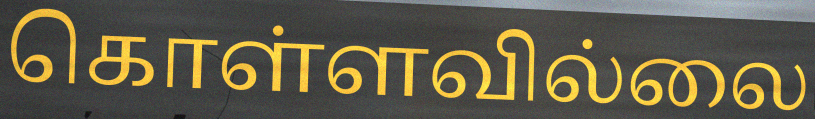
கொள்ளவில்லை